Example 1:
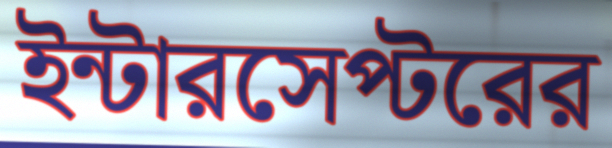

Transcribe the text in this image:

ইন্টারসেপ্টরের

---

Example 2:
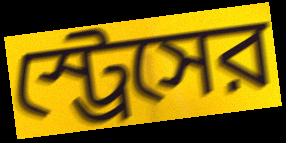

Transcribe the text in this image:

স্ট্রেসের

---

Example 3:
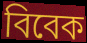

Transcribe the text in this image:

বিবেক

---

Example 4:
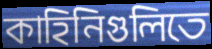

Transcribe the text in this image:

কাহিনিগুলিতে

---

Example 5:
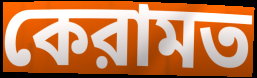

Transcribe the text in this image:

কেরামত